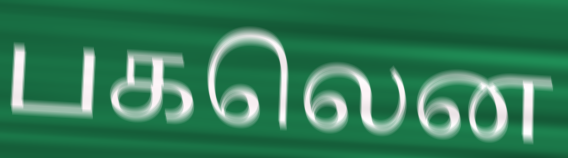
பகலென